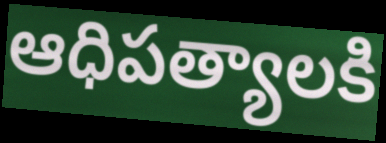
ఆధిపత్యాలకి